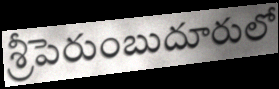
శ్రీపెరుంబుదూరులో